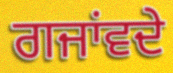
ਗਜਾਂਵਦੇ